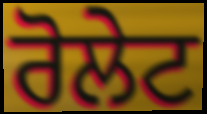
ਰੋਲੇਟ